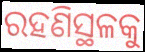
ରହଣିସ୍ଥଳକୁ